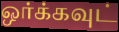
ஒர்க்கவுட்